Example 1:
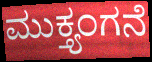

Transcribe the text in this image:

ಮುಕ್ತ್ಯಂಗನೆ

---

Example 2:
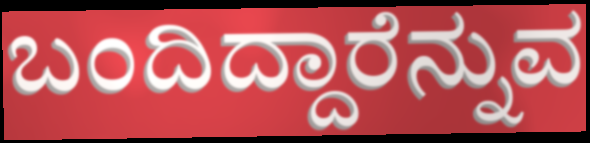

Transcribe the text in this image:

ಬಂದಿದ್ದಾರೆನ್ನುವ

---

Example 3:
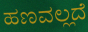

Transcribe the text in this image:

ಹಣವಲ್ಲದೆ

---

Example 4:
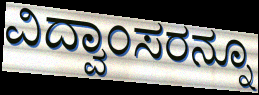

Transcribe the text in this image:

ವಿದ್ವಾಂಸರನ್ನೂ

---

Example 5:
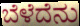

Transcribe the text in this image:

ಬೆಳೆದೆನು